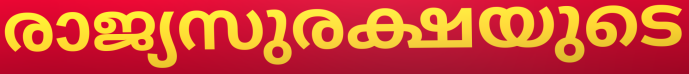
രാജ്യസുരക്ഷയുടെ